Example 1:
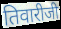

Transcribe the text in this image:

तिवारीजी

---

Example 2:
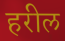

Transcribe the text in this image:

हरील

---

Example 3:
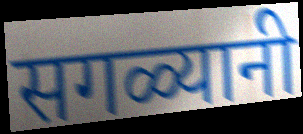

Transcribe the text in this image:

सगळ्यानी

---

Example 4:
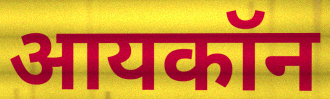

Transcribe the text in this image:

आयकॉन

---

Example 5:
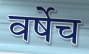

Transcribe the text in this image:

वर्षेच